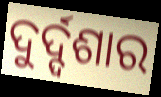
ଦୁର୍ଦ୍ଦଶାର